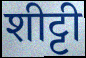
शीट्टी